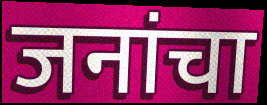
जनांचा